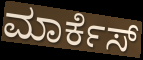
ಮಾರ್ಕೆಸ್